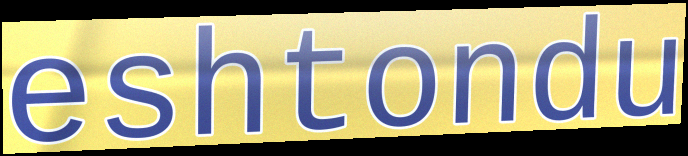
eshtondu